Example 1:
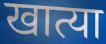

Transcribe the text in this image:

खात्या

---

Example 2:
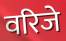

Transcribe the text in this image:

वरिजे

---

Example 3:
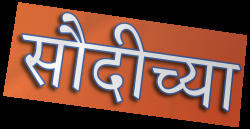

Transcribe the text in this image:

सौदीच्या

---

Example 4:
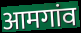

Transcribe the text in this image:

आमगांव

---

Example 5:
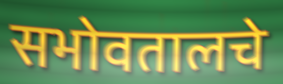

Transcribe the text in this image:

सभोवतालचे